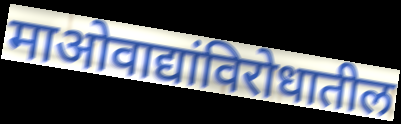
माओवाद्यांविरोधातील